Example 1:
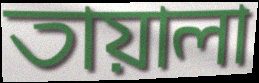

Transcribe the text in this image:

তায়ালা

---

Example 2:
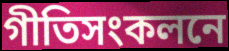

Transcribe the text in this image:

গীতিসংকলনে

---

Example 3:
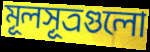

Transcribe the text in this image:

মূলসূত্রগুলো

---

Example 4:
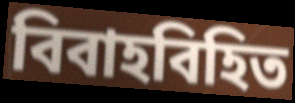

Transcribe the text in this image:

বিবাহবিহিত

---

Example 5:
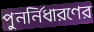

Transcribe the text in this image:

পুনর্নিধারণের